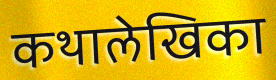
कथालेखिका